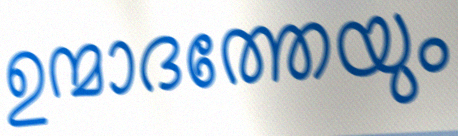
ഉന്മാദത്തേയും